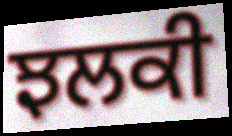
ਝਲਕੀ